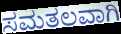
ಸಮತಲವಾಗಿ